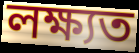
লক্ষ্যত